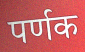
पर्णक